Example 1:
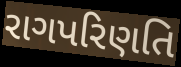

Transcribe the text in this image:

રાગપરિણતિ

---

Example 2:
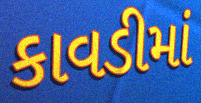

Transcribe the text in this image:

કાવડીમાં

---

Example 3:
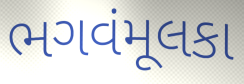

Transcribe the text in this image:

ભગવંમૂલકા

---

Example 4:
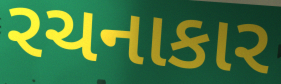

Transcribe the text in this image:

રચનાકાર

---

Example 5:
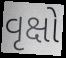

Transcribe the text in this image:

વૃક્ષો